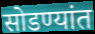
सोडण्यांत